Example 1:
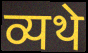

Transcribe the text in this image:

व्यथे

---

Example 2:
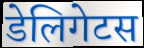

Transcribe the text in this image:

डेलिगेटस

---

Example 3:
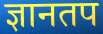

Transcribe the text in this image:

ज्ञानतप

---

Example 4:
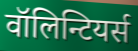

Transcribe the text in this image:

वॉलिन्टियर्स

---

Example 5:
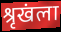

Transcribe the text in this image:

श्रृखंला